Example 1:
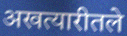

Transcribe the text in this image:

अखत्यारीतले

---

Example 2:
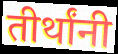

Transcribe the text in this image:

तीर्थांनी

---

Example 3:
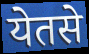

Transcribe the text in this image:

येतसे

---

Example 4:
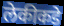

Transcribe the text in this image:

लेकीकडे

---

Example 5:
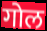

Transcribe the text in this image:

गोल